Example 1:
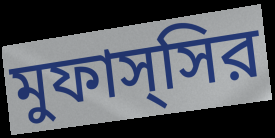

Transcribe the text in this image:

মুফাস্সির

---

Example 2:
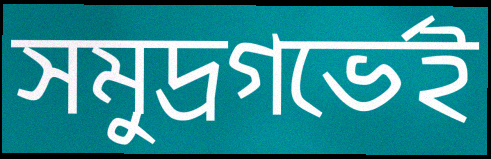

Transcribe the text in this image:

সমুদ্রগর্ভেই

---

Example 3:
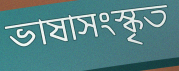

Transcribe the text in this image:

ভাষাসংস্কৃত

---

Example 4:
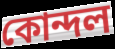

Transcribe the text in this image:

কোন্দল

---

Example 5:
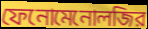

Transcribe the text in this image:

ফেনোমেনোলজির